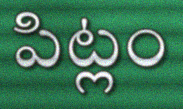
పిట్లం